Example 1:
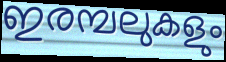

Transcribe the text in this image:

ഇരമ്പലുകളും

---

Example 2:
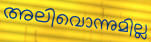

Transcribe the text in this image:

അലിവൊന്നുമില്ല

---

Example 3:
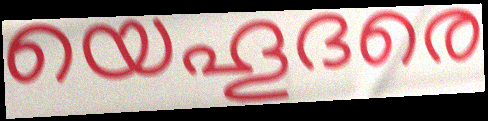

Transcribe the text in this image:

യെഹൂദരെ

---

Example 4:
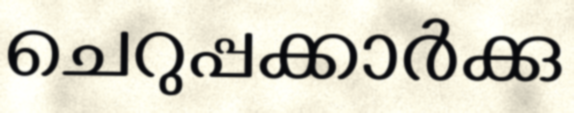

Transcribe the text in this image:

ചെറുപ്പക്കാർക്കു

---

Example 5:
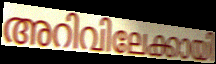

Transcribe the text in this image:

അറിവിലേക്കായി